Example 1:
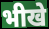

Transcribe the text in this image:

भीखे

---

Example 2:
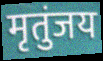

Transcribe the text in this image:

मृतुंजय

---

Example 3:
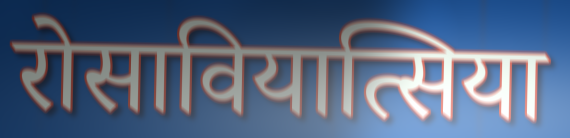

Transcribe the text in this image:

रोसावियात्सिया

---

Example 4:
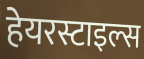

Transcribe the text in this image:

हेयरस्टाइल्स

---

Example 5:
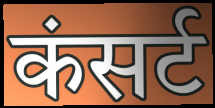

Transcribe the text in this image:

कंसर्ट